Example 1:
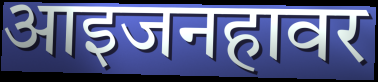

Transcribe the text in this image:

आइजनहावर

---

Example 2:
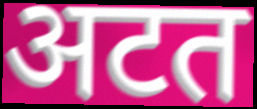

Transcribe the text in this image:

अटत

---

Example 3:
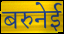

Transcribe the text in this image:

बरुनेई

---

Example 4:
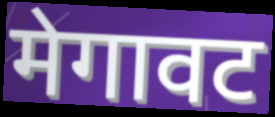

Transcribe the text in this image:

मेगावट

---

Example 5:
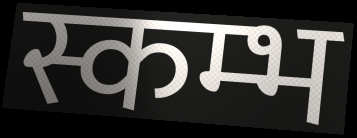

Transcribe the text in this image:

स्कम्भ